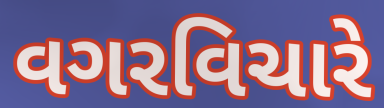
વગરવિચારે